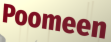
Poomeen